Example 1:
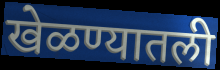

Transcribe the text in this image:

खेळण्यातली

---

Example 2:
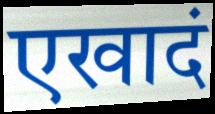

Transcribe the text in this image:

एखादं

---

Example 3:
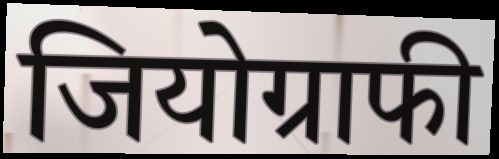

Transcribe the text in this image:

जियोग्राफी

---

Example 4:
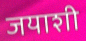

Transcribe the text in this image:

जयाशी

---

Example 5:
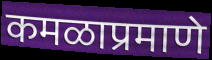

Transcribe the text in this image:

कमळाप्रमाणे